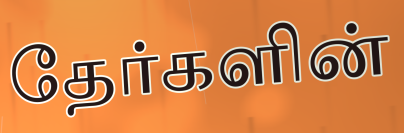
தேர்களின்